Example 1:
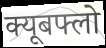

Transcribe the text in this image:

क्यूबफ्लो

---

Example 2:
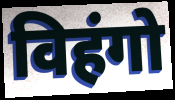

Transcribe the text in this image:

विहंगो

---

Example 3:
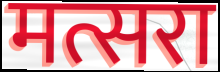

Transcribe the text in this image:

मत्सरा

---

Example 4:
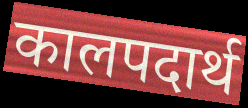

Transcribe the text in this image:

कालपदार्थ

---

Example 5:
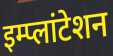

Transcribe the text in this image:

इम्प्लांटेशन